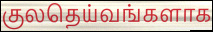
குலதெய்வங்களாக